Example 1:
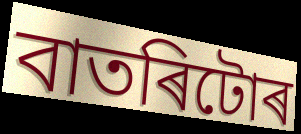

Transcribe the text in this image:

বাতৰিটোৰ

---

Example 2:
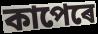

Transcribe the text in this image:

কাপেৰে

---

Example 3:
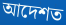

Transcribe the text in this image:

আদেশত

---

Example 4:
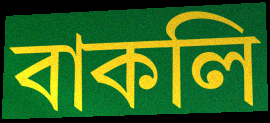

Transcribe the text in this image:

বাকলি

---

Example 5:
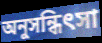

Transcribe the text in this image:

অনুসন্ধিৎসা